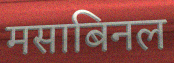
मसाबिनल